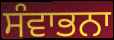
ਸੰਵਾਭਨਾ